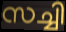
സച്ചി